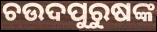
ଚଉଦପୁରୁଷଙ୍କ